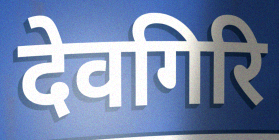
देवगिरि